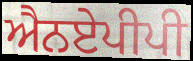
ਐਨਏਪੀਪੀ